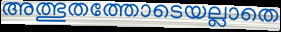
അത്ഭുതത്തോടെയല്ലാതെ